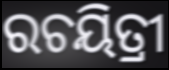
ରଚୟିତ୍ରୀ